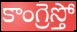
కాంగ్రెస్తో